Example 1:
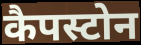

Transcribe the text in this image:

कैपस्टोन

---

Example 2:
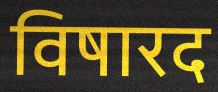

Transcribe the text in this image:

विषारद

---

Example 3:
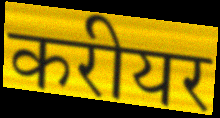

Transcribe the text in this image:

करीयर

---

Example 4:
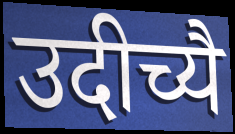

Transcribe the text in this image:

उदीच्यै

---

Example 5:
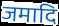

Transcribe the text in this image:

जमादि